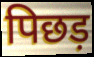
पिछड़